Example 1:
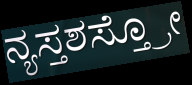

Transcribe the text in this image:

ನ್ಯಸ್ತಶಸ್ತ್ರೋ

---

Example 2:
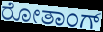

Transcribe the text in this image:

ರೋತಾಂಗ್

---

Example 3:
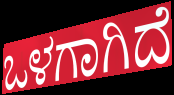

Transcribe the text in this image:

ಒಳಗಾಗಿದೆ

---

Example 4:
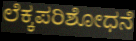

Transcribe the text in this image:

ಲೆಕ್ಕಪರಿಶೋಧನೆ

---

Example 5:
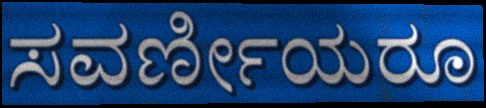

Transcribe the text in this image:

ಸವರ್ಣೀಯರೂ